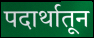
पदार्थातून